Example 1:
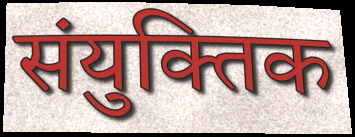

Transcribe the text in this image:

संयुक्‍तिक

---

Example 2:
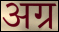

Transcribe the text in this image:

अग्र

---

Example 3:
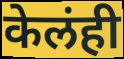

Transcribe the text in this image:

केलंही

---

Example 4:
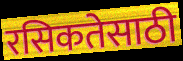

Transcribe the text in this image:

रसिकतेसाठी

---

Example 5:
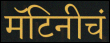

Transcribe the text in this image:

मॅटिनीचं